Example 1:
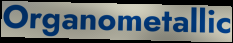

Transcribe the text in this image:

Organometallic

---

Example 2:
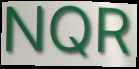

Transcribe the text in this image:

NQR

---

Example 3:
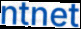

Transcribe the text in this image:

ntnet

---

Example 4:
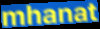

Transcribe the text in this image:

mhanat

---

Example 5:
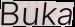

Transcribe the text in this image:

Buka